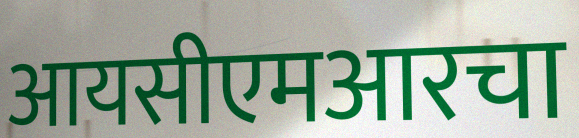
आयसीएमआरचा